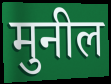
मुनील